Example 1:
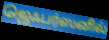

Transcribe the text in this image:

ஜெஃபர்ஸனில்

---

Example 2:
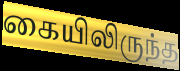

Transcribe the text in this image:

கையிலிருந்த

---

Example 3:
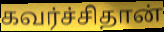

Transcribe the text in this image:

கவர்ச்சிதான்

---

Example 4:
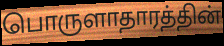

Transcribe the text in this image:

பொருளாதாரத்தின்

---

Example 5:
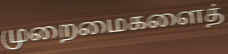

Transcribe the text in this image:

முறைமைகளைத்